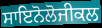
ਸਾਇਨੋਲੋਜੀਕਲ